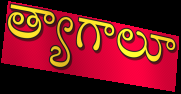
త్యాగాలూ